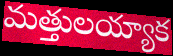
మత్తులయ్యాక